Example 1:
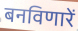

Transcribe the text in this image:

बनविणारें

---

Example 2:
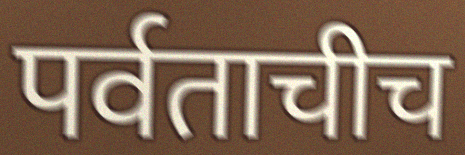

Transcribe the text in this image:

पर्वताचीच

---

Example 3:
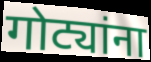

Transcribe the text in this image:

गोट्यांना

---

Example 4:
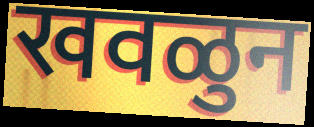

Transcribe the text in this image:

खवळुन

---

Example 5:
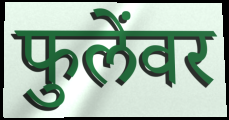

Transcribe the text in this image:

फुलेंवर